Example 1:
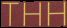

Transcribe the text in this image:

THH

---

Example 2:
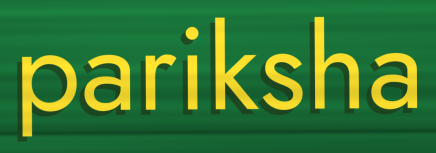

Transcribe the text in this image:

pariksha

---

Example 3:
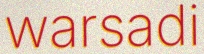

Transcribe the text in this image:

warsadi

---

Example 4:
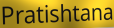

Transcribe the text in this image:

Pratishtana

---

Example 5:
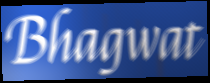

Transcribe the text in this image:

Bhagwat